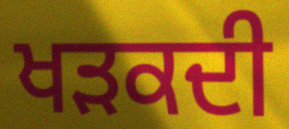
ਖੜਕਦੀ